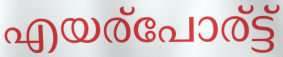
എയര്പോര്ട്ട്